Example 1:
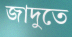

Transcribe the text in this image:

জাদুতে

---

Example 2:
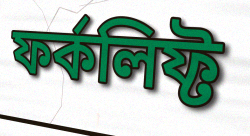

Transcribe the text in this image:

ফর্কলিফ্ট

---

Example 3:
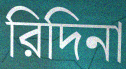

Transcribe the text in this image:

রিদিনা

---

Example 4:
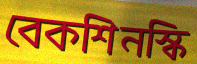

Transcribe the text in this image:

বেকশিনস্কি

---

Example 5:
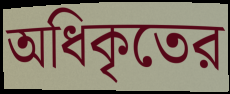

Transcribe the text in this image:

অধিকৃতের